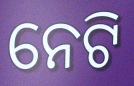
ନେଟି